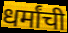
धर्मांची